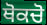
ਥੋਕਚੋ